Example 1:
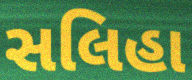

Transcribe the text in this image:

સલિહા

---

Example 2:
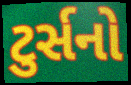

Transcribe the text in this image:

ટુર્સનો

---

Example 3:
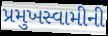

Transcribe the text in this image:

પ્રમુખસ્વામીની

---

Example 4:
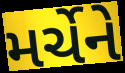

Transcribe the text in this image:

મર્ચેને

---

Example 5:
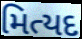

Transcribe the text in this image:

મિત્યદ